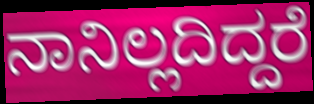
ನಾನಿಲ್ಲದಿದ್ದರೆ